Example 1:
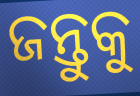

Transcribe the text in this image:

ଜନ୍ତୁକୁ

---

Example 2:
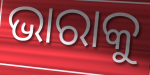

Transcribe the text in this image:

ଭାରାକୁ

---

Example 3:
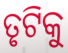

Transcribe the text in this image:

ତୃଟିକୁ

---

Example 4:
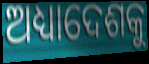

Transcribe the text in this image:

ଅଧ୍ୟାଦେଶକୁ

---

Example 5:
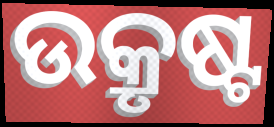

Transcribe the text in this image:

ଉକ୍ରୃଷ୍ଟ